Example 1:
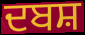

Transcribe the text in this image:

ਦਬਸ਼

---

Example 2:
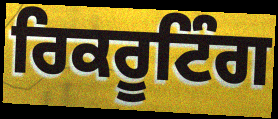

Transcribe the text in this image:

ਰਿਕਰੂਟਿੰਗ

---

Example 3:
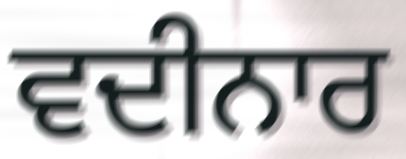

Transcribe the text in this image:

ਵਦੀਨਾਰ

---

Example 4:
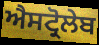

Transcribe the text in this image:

ਐਸਟ੍ਰੋਲੇਬ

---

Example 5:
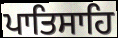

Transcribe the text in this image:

ਪਾਤਿਸਾਹਿ